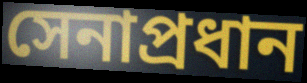
সেনাপ্রধান